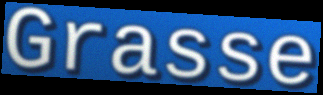
Grasse